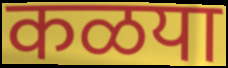
कळया